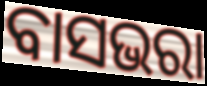
ବାସଭରା